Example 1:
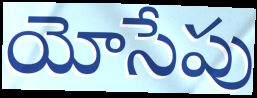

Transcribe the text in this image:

యోసేపు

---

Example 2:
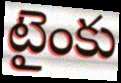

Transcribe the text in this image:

టైంకు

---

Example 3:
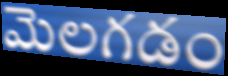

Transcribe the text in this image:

మెలగడం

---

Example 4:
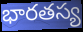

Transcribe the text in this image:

భారతస్య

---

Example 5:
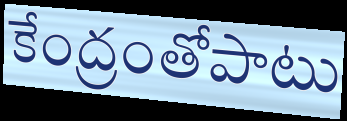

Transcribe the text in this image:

కేంద్రంతోపాటు